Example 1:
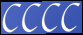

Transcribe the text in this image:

CCCC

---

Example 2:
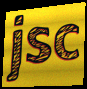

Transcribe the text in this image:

jsc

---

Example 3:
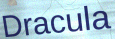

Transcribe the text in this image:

Dracula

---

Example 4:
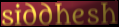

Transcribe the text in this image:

siddhesh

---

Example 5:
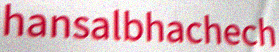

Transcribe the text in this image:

hansalbhachech